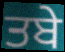
ਤਬੇ